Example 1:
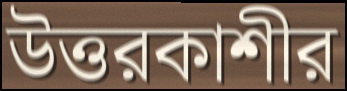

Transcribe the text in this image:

উত্তরকাশীর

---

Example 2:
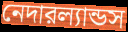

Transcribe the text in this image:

নেদারল্যান্ডস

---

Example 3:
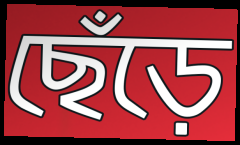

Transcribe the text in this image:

ছেঁড়ে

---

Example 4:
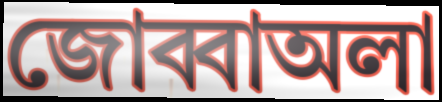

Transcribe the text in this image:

জোব্বাঅলা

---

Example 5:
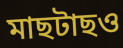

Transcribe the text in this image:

মাছটাছও